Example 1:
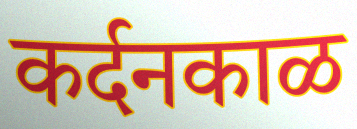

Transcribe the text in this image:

कर्दनकाळ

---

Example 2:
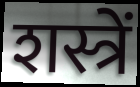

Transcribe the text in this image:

शस्त्रें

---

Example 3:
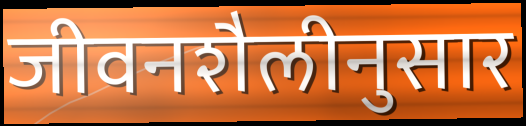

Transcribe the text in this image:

जीवनशैलीनुसार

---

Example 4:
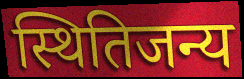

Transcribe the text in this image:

स्थितिजन्य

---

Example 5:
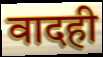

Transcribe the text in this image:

वादही